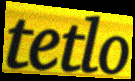
tetlo